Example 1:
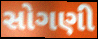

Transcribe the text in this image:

સોગણી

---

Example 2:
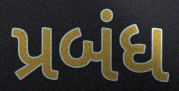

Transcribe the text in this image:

પ્રબંધ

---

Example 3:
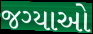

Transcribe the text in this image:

જગ્યાઓ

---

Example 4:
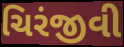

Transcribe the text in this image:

ચિરંજીવી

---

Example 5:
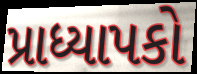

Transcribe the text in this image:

પ્રાધ્યાપકો